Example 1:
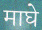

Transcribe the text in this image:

माघे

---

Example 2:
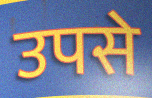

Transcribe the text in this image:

उपसे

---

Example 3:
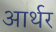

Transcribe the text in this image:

आर्थर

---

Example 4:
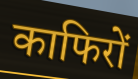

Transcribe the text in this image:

काफिरों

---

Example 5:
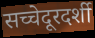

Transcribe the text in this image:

सच्चेदूरदर्शी